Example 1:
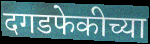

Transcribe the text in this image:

दगडफेकीच्या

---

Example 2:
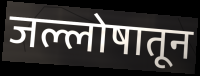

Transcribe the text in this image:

जल्लोषातून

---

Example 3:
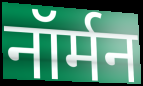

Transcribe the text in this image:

नॉर्मन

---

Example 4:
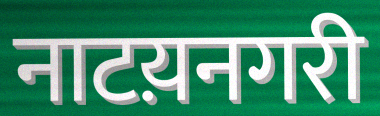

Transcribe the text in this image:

नाटय़नगरी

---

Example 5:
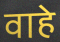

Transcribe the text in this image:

वाहे